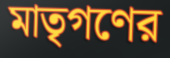
মাতৃগণের